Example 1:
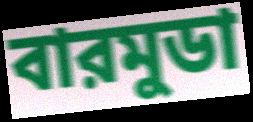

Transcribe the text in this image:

বারমুডা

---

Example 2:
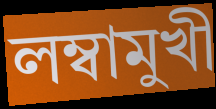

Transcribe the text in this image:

লম্বামুখী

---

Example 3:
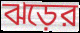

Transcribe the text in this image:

ঝড়ের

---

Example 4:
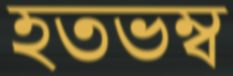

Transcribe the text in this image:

হতভম্ব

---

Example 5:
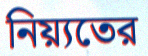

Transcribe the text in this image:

নিয়্যতের